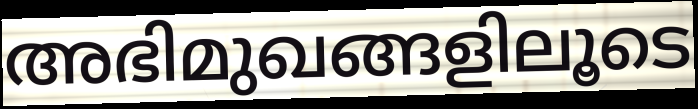
അഭിമുഖങ്ങളിലൂടെ